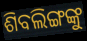
ଶିବଲିଙ୍ଗଙ୍କୁ